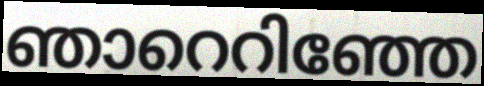
ഞാറെറിഞ്ഞേ